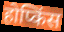
होप्किंस